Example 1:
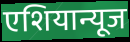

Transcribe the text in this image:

एशियान्यूज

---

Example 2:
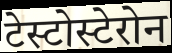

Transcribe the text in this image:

टेस्‍टोस्‍टेरोन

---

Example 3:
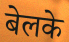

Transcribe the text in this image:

बेलके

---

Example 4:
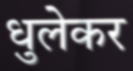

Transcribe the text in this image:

धुलेकर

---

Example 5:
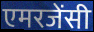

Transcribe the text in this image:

एमरजेंसी